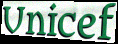
Unicef